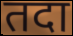
तदा